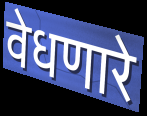
वेधणारे